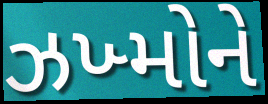
ઝખ્મોને